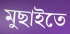
মুছাইতে